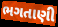
ભગતાણી